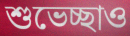
শুভেচ্ছাও